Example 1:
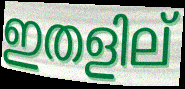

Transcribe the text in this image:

ഇതളില്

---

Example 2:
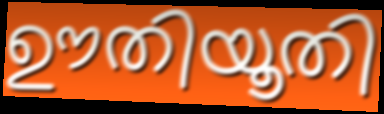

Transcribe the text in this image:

ഊതിയൂതി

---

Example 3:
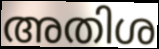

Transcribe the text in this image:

അതിശ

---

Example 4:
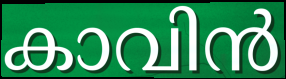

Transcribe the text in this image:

കാവിൻ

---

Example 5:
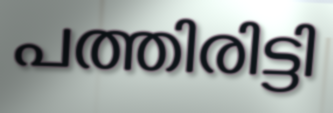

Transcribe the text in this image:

പത്തിരിട്ടി